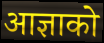
आज्ञाको